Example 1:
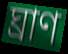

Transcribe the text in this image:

ঘ্রাণ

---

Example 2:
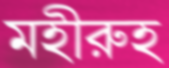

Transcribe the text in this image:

মহীরুহ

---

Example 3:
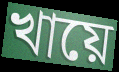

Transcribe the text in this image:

খায়ে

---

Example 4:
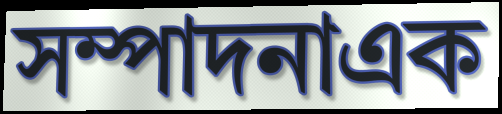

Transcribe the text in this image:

সম্পাদনাএক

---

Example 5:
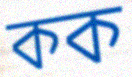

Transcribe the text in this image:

কক